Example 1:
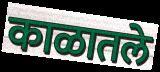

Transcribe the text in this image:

काळातले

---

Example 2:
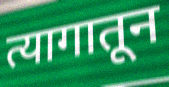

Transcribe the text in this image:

त्यागातून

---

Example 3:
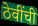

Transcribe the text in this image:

ठेवींची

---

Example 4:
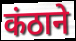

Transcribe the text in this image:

कंठाने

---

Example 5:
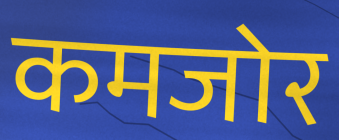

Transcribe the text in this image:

कमजोर